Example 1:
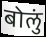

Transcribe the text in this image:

बोलुं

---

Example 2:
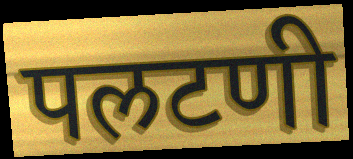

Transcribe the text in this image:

पलटणी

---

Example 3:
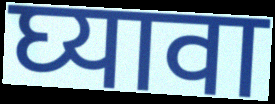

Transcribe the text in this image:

घ्यावा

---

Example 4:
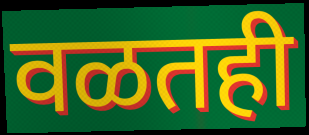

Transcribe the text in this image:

वळतही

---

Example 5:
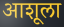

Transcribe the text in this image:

आशूला